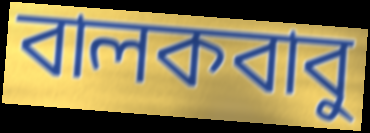
বালকবাবু